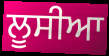
ਲੂਸੀਆ